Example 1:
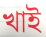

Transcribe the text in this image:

খাই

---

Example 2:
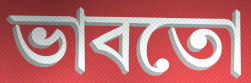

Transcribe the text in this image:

ভাবতো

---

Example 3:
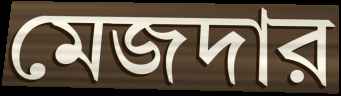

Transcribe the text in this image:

মেজদার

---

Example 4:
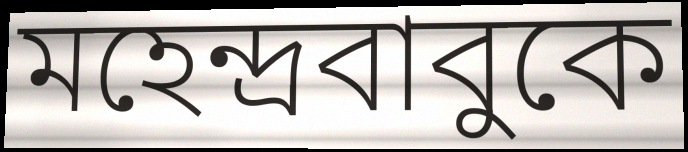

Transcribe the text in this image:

মহেন্দ্রবাবুকে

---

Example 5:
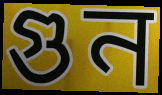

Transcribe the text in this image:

গুন